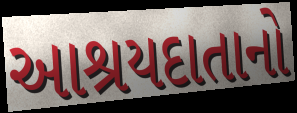
આશ્રયદાતાનો